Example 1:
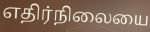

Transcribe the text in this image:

எதிர்நிலையை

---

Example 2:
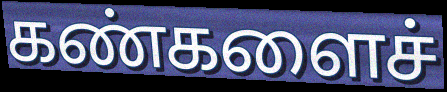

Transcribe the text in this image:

கண்களைச்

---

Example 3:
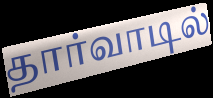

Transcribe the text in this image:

தார்வாடில்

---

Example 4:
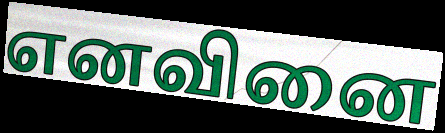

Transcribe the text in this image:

எனவினை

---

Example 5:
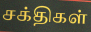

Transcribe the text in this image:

சக்திகள்